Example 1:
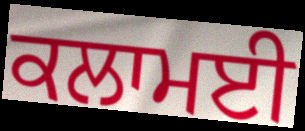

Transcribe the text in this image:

ਕਲਾਮਈ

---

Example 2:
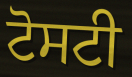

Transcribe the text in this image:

ਟੋਸਟੀ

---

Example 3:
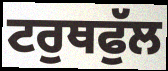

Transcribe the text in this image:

ਟਰੁਥਫੁੱਲ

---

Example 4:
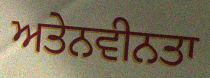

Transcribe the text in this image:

ਅਤੇਨਵੀਨਤਾ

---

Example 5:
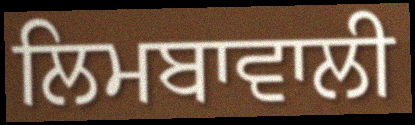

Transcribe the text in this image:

ਲਿਮਬਾਵਾਲੀ